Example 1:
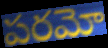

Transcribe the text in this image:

పరమో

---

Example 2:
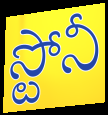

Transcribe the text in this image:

స్టోనీ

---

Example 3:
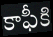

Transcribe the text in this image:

కాఫీకి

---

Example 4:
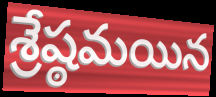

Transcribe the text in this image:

శ్రేష్ఠమయిన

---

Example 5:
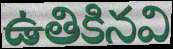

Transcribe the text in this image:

ఉతికినవి